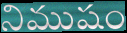
నిముషం